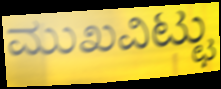
ಮುಖವಿಟ್ಟು